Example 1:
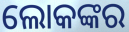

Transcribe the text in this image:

ଲୋକଙ୍କର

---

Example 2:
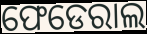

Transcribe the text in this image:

ଫେଡେରାଲ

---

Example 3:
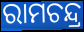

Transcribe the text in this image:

ରାମଚନ୍ଦ୍ର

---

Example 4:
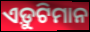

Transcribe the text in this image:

ଏଡ଼ୁଟିମାନ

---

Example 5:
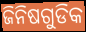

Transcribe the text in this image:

ଜିନିଷଗୁଡିକ